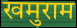
खमुराम